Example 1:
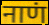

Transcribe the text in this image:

नाणं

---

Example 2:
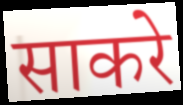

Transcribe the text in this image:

साकरे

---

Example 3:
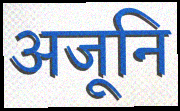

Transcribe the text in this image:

अजूनि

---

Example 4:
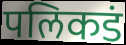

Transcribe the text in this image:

पलिकडं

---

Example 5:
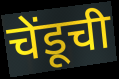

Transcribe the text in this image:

चेंडूची